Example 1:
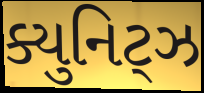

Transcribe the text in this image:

ક્યુનિટ્ઝ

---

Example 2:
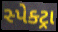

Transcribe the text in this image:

સ્પેક્ટ્રા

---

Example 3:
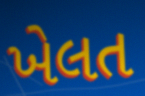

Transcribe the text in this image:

ખેલત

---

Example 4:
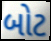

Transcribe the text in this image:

બોટ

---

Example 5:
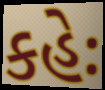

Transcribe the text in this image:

કહેઃ